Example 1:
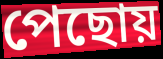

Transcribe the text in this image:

পেছোয়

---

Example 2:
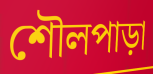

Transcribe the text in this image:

শৌলপাড়া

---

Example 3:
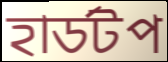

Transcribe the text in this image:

হার্ডটপ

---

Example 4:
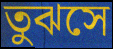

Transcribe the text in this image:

তুঝসে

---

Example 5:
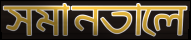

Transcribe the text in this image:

সমানতালে